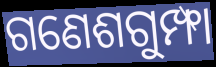
ଗଣେଶଗୁମ୍ଫା